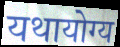
यथायोग्य